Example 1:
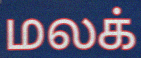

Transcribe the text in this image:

மலக்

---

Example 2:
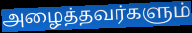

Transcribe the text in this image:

அழைத்தவர்களும்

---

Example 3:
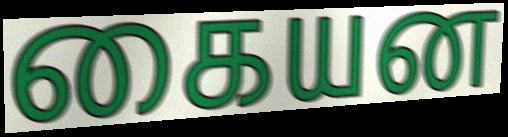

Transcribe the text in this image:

கையன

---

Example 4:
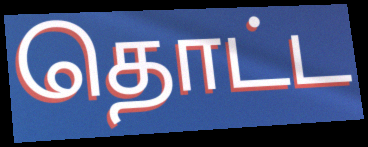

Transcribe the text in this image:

தொட்ட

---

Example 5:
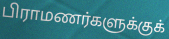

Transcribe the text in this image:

பிராமணர்களுக்குக்